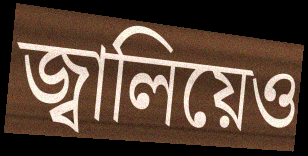
জ্বালিয়েও